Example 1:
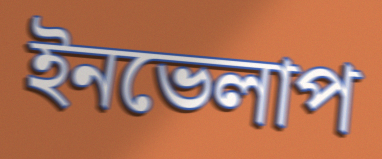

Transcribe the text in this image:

ইনভেলাপ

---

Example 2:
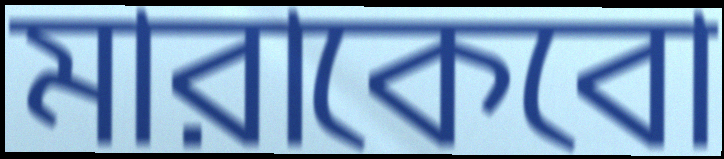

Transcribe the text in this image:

মারাকেবো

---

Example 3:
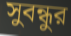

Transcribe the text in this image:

সুবন্ধুর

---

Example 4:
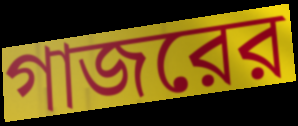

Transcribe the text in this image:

গাজরের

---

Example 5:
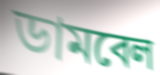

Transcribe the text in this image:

ডামবেল